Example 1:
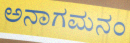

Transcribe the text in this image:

ಅನಾಗಮನಂ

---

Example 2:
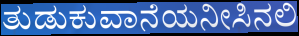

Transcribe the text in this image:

ತುಡುಕುವಾನೆಯನೀಸಿನಲಿ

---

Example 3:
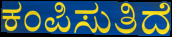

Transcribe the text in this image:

ಕಂಪಿಸುತಿದೆ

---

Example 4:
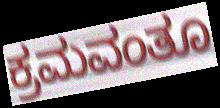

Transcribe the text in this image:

ಕ್ರಮವಂತೂ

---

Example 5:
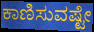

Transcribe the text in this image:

ಕಾಣಿಸುವಷ್ಟೇ